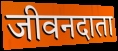
जीवनदाता